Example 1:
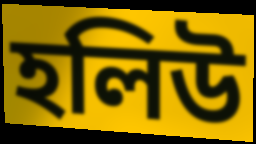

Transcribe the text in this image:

হলিউ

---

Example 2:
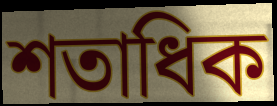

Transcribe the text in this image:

শতাধিক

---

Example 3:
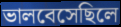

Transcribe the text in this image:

ভালবেসেছিলে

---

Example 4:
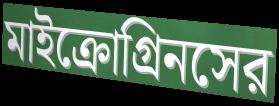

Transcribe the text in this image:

মাইক্রোগ্রিনসের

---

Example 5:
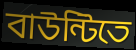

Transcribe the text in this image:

বাউন্টিতে